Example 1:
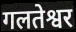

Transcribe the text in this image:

गलतेश्वर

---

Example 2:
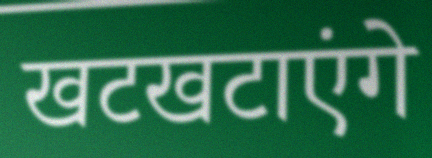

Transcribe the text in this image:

खटखटाएंगे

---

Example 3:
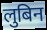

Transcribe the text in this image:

लुबिन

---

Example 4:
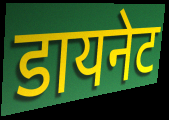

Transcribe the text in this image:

डायनेट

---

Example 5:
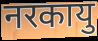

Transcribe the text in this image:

नरकायु